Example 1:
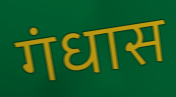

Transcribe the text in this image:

गंधास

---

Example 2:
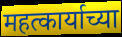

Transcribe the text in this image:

महत्कार्याच्या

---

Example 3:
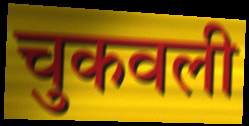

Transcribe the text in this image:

चुकवली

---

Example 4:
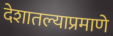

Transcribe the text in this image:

देशातल्याप्रमाणे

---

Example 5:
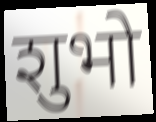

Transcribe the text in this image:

शुभो